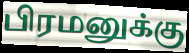
பிரமனுக்கு